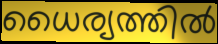
ധൈര്യത്തിൽ